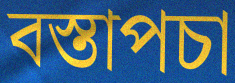
বস্তাপচা